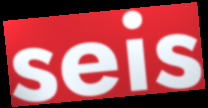
seis